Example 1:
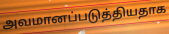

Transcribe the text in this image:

அவமானப்படுத்தியதாக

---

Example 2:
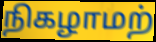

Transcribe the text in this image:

நிகழாமற்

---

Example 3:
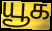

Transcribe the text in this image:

யூக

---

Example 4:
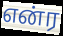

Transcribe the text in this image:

என்ர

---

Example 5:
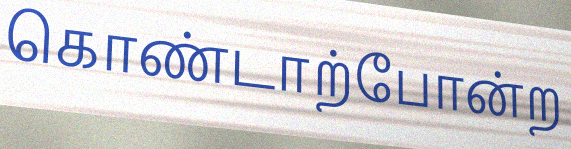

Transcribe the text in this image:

கொண்டாற்போன்ற